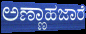
ಅಣ್ಣಾಹಜಾರೆ